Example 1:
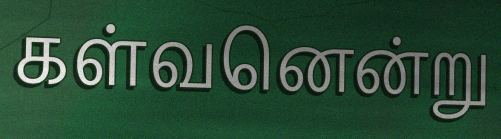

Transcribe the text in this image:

கள்வனென்று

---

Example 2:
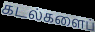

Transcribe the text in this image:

கடல்களைப்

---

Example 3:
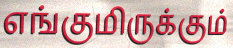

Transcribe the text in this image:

எங்குமிருக்கும்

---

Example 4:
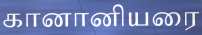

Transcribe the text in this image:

கானானியரை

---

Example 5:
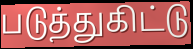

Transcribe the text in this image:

படுத்துகிட்டு